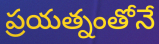
ప్రయత్నంతోనే